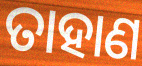
ତାହାଣ